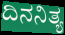
ದಿನನಿತ್ಯ